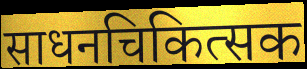
साधनचिकित्सक